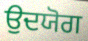
ਉਦਯੋਗ